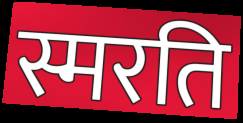
स्मरति